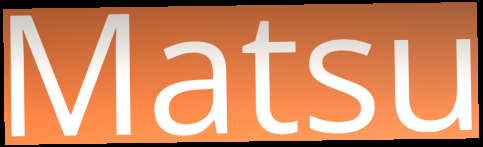
Matsu